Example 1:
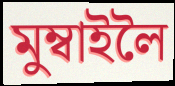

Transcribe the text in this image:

মুম্বাইলৈ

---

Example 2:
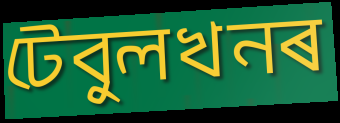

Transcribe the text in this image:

টেবুলখনৰ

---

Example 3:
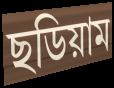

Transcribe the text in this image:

ছডিয়াম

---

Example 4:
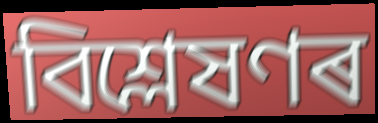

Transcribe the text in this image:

বিশ্লেষণৰ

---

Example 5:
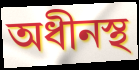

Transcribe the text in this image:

অধীনস্থ